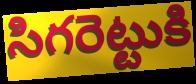
సిగరెట్టుకి